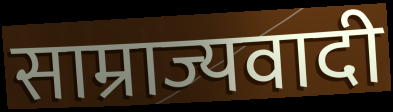
साम्राज्‍यवादी